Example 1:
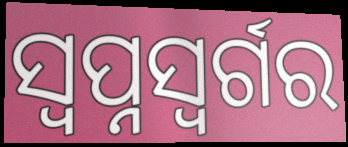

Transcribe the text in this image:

ସ୍ୱପ୍ନସ୍ୱର୍ଗର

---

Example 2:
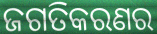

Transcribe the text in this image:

ଜଗତିକରଣର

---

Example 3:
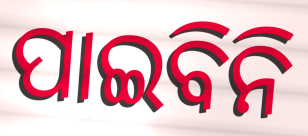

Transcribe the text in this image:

ପାଇବିନି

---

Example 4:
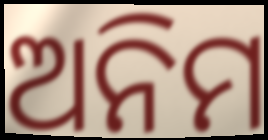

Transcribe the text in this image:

ଅନିମ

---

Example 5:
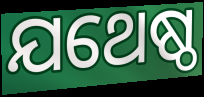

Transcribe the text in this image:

ଯଥେଷ୍ଠ